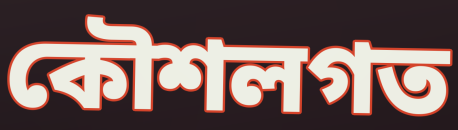
কৌশলগত